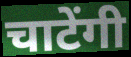
चाटेंगी